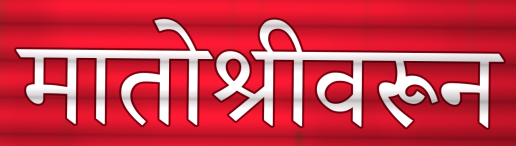
मातोश्रीवरून